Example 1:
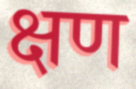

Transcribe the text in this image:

क्षण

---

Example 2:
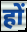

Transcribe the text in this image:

हों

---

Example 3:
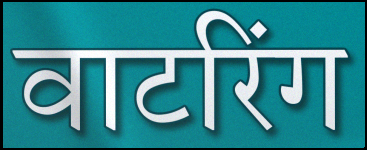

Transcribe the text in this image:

वाटरिंग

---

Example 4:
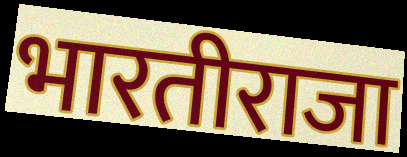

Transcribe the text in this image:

भारतीराजा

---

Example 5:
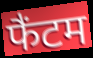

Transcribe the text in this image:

फैंटम